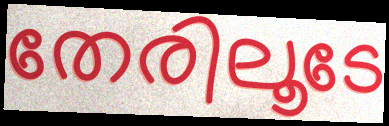
തേരിലൂടേ